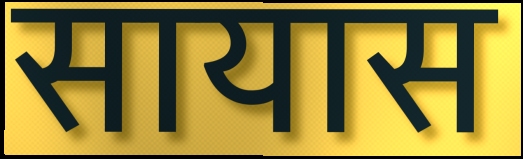
सायास